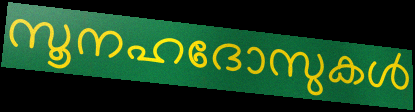
സൂനഹദോസുകൾ